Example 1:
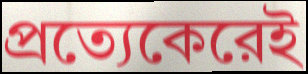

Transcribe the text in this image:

প্রত্যেকেরেই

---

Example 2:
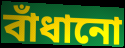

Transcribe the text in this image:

বাঁধানো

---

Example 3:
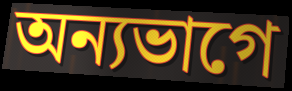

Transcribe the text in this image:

অন্যভাগে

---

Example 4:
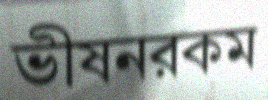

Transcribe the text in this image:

ভীষনরকম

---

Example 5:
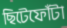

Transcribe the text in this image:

ছিটেফোঁটা